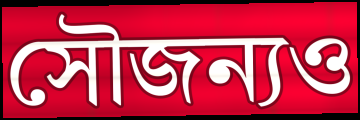
সৌজন্যও